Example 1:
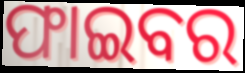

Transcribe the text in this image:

ଫାଇବର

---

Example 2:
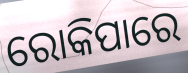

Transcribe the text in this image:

ରୋକିପାରେ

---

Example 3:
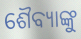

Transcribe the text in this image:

ଶୈବ୍ୟାଙ୍କୁ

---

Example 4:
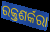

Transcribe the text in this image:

ରକ୍ତଶର୍କରା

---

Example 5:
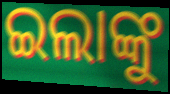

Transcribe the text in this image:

ଇଲାଙ୍କୁ